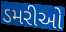
ડમરીઓ